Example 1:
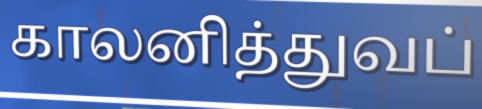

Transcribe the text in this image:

காலனித்துவப்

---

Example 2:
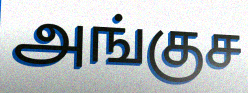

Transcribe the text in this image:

அங்குச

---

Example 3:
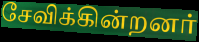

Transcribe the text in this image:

சேவிக்கின்றனர்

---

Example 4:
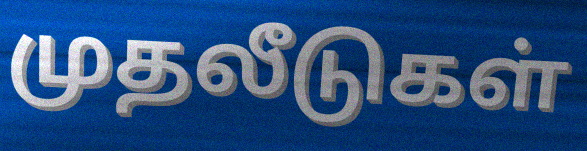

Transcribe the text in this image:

முதலீடுகள்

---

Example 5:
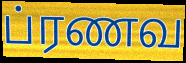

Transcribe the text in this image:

ப்ரணவ